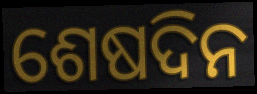
ଶେଷଦିନ